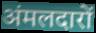
अंमलदारों